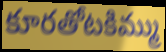
కూరతోటకిమ్ము